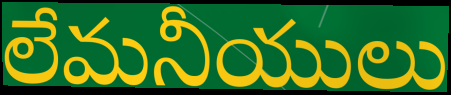
లేమనీయులు